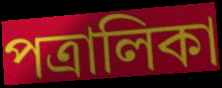
পত্রালিকা